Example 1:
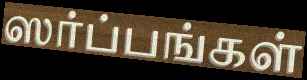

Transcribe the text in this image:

ஸர்ப்பங்கள்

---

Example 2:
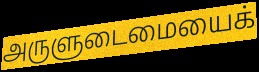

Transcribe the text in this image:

அருளுடைமையைக்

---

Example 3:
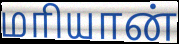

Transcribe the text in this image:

மரியான்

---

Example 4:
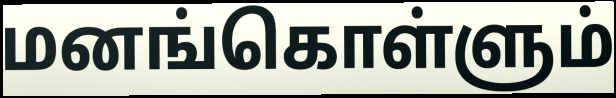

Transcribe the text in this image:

மனங்கொள்ளும்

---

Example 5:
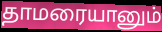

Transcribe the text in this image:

தாமரையானும்